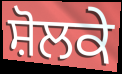
ਸ਼ੋਲਕੇ